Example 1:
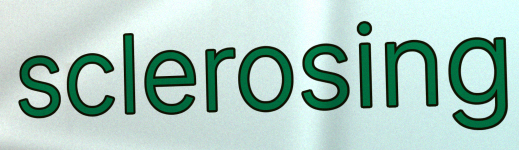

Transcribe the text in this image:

sclerosing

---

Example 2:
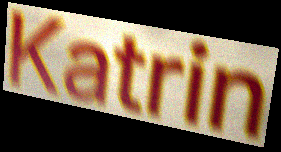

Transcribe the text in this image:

Katrin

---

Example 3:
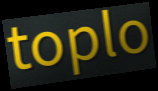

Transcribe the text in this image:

toplo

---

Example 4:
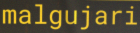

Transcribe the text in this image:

malgujari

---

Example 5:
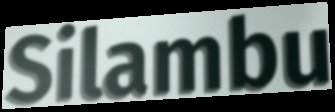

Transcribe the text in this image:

Silambu